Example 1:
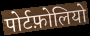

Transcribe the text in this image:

पोर्टफ़ोलियो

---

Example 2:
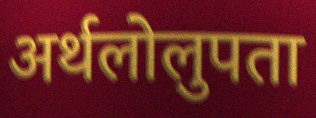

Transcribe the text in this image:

अर्थलोलुपता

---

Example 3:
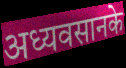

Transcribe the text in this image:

अध्यवसानके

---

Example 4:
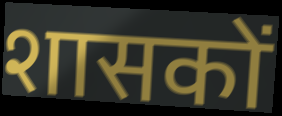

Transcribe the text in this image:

शासकों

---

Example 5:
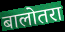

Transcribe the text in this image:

बालोतरा